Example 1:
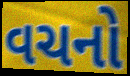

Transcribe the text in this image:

વચનો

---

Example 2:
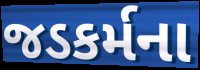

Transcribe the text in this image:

જડકર્મના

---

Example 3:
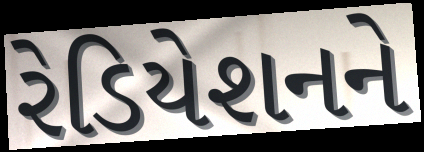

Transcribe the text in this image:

રેડિયેશનને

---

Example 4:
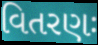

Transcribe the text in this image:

વિતરણઃ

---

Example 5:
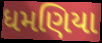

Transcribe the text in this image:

ધમણિયા